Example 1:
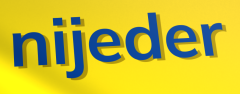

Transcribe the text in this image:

nijeder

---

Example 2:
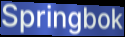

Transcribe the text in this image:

Springbok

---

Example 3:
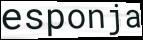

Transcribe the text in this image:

esponja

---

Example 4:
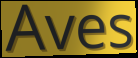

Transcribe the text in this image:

Aves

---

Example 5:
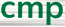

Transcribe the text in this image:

cmp